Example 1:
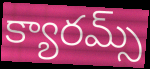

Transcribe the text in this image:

క్యారమ్స్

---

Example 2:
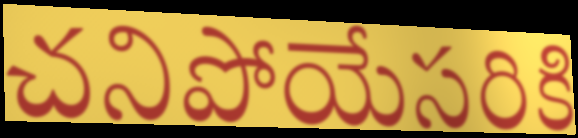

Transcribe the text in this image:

చనిపోయేసరికి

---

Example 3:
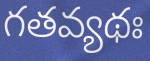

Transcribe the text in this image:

గతవ్యథః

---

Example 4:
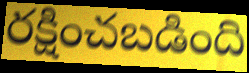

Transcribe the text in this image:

రక్షించబడింది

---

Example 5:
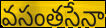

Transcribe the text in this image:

వసంతసేనా